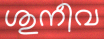
ശുനീവ